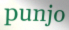
punjo